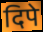
दिपे